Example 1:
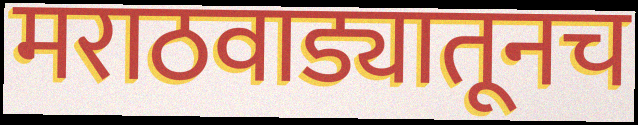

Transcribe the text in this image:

मराठवाड्यातूनच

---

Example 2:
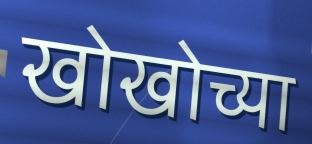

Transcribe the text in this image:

खोखोच्या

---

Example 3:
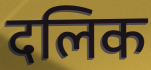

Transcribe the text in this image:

दलिक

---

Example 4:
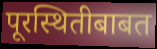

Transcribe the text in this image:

पूरस्थितीबाबत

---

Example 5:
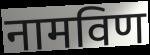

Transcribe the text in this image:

नामविण